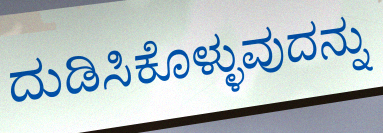
ದುಡಿಸಿಕೊಳ್ಳುವುದನ್ನು